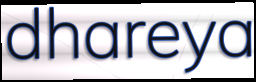
dhareya